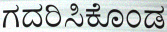
ಗದರಿಸಿಕೊಂಡ